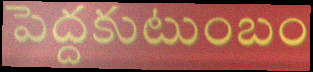
పెద్దకుటుంబం